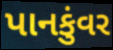
પાનકુંવર